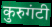
कुरुगंटी